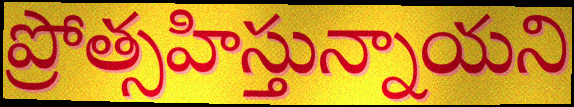
ప్రోత్సహిస్తున్నాయని